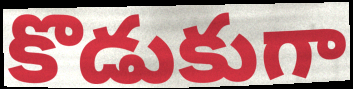
కొడుకుగా